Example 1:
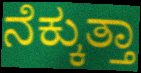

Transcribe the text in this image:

ನೆಕ್ಕುತ್ತಾ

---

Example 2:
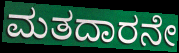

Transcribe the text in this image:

ಮತದಾರನೇ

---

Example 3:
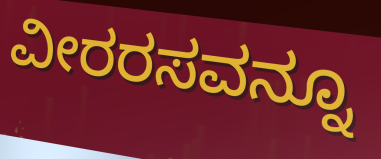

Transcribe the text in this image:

ವೀರರಸವನ್ನೂ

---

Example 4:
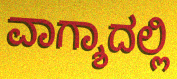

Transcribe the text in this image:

ವಾಗ್ಶಾದಲ್ಲಿ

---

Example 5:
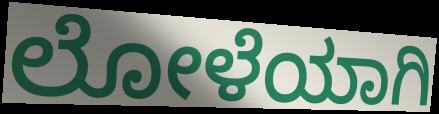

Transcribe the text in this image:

ಲೋಳೆಯಾಗಿ